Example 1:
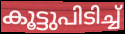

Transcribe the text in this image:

കൂട്ടുപിടിച്ച്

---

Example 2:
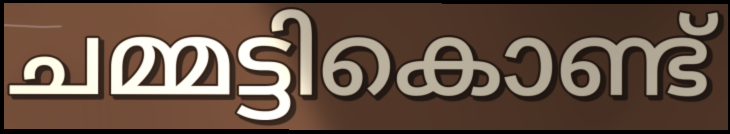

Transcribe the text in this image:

ചമ്മട്ടികൊണ്ട്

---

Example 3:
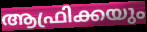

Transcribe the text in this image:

ആഫ്രിക്കയും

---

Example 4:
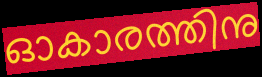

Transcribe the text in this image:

ഓകാരത്തിനു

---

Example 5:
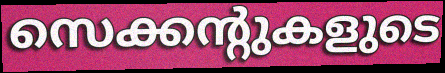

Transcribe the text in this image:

സെക്കന്റുകളുടെ